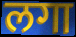
लगा